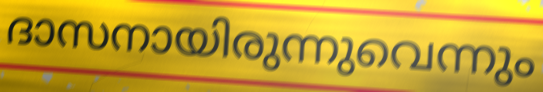
ദാസനായിരുന്നുവെന്നും